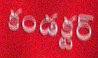
కండక్టర్